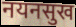
नयनसुख